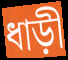
ধাড়ী